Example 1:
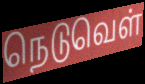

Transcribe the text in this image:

நெடுவெள்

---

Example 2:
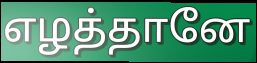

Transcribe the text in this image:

எழத்தானே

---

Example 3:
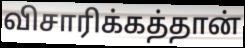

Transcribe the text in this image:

விசாரிக்கத்தான்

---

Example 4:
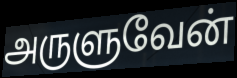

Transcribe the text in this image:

அருளுவேன்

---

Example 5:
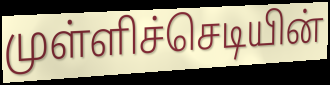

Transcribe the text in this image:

முள்ளிச்செடியின்